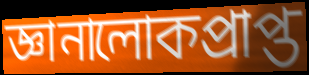
জ্ঞানালোকপ্রাপ্ত